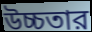
উচ্চতার